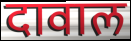
दावाल